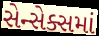
સેન્સેક્સમાં